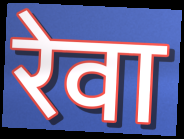
रेवा